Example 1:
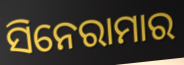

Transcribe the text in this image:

ସିନେରାମାର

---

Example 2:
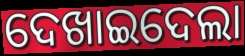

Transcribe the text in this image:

ଦେଖାଇଦେଲା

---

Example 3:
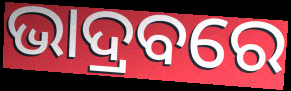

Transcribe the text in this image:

ଭାଦ୍ରବରେ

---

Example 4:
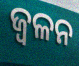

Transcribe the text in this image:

ଜ୍ୱଳନ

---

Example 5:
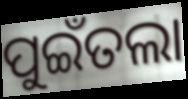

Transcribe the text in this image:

ପୁଇଁତଲା